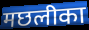
मछलीका